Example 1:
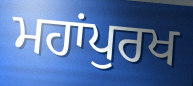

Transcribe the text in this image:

ਮਹਾਂਪੁਰਖ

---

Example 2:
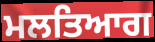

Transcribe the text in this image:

ਮਲਤਿਆਗ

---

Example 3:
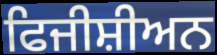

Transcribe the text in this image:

ਫਿਜੀਸ਼ੀਅਨ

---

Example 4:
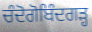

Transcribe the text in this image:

ਚੰਦੋਗੋਬਿੰਦਗੜ੍ਹ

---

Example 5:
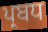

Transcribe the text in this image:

ਪ੍ਰਬਧ